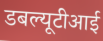
डबल्यूटीआई